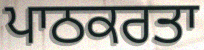
ਪਾਠਕਰਤਾ